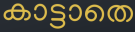
കാട്ടാതെ